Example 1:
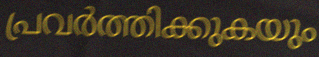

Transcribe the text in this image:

പ്രവർത്തിക്കുകയും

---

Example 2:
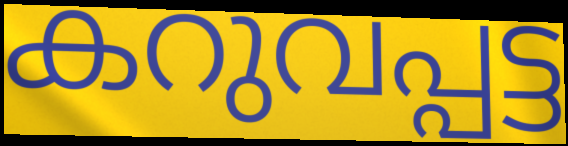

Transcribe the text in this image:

കറുവപ്പട്ട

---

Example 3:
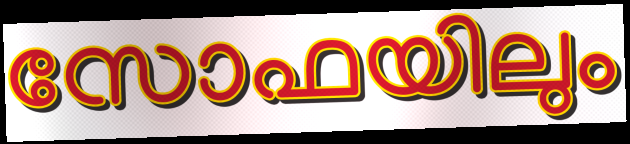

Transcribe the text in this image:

സോഫയിലും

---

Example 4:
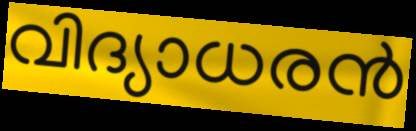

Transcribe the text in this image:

വിദ്യാധരൻ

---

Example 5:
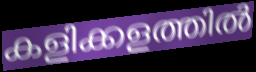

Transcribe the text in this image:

കളിക്കളത്തിൽ